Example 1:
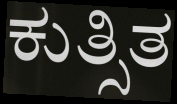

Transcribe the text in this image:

ಕುತ್ಸಿತ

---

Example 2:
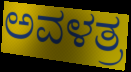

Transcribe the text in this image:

ಅವಳತ್ರ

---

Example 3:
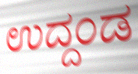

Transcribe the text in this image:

ಉದ್ದಂಡ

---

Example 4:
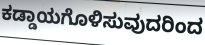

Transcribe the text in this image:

ಕಡ್ಡಾಯಗೊಳಿಸುವುದರಿಂದ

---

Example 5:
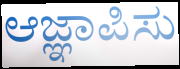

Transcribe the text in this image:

ಆಜ್ಞಾಪಿಸು